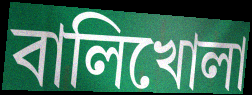
বালিখোলা